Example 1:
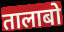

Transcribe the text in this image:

तालाबो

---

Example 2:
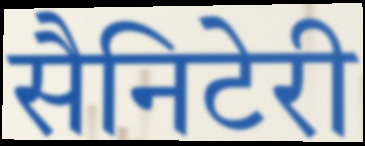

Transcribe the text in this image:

सैनिटेरी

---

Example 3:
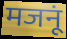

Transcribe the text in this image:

मजनूं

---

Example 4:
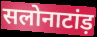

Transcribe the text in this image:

सलोनाटांड़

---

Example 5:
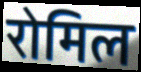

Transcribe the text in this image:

रोमिल